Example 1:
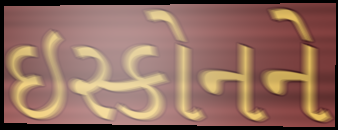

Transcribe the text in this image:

ઇસ્કોનને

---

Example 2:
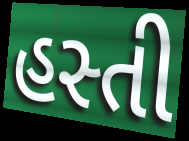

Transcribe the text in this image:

હસ્તી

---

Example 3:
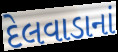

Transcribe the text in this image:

દેલવાડાનાં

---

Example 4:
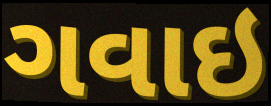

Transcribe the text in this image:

ગવાઇ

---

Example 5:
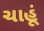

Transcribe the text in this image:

ચાહૂં